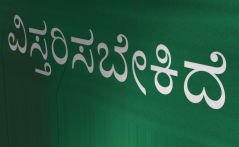
ವಿಸ್ತರಿಸಬೇಕಿದೆ